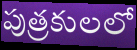
పుత్రకులలో